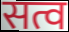
सत्व